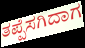
ತಪ್ಪೆಸಗಿದಾಗ